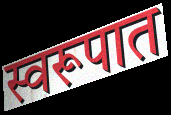
स्वरूपात